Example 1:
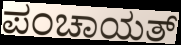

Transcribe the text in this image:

ಪಂಚಾಯತ್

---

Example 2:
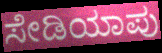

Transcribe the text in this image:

ಸೇಡಿಯಾಪು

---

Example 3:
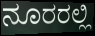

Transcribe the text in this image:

ನೂರರಲ್ಲಿ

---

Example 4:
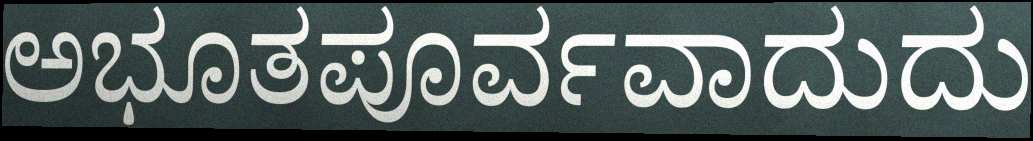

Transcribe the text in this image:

ಅಭೂತಪೂರ್ವವಾದುದು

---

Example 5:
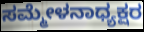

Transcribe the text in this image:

ಸಮ್ಮೇಳನಾಧ್ಯಕ್ಷರ